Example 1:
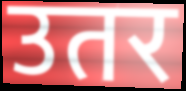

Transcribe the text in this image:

उतर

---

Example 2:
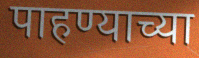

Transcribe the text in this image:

पाहण्याच्या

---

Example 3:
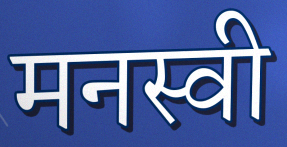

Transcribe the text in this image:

मनस्वी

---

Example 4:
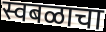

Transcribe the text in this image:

स्वबळाचा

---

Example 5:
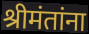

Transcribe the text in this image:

श्रीमंतांना